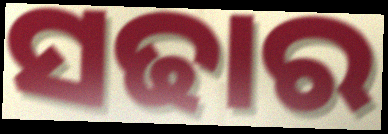
ସଢାର